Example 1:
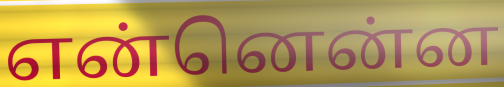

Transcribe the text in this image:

என்னென்ன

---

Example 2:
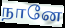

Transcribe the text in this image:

நானே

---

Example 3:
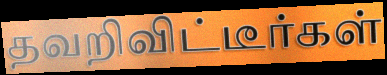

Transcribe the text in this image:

தவறிவிட்டீர்கள்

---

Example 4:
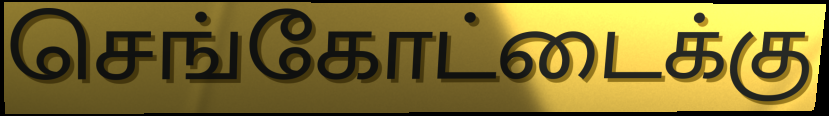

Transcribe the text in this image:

செங்கோட்டைக்கு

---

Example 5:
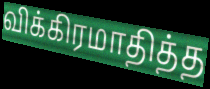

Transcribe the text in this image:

விக்கிரமாதித்த